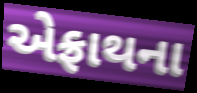
એફ્રાથના